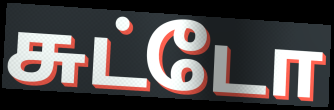
சுட்டோ